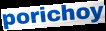
porichoy